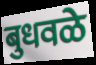
बुधवळे